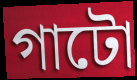
গাটো